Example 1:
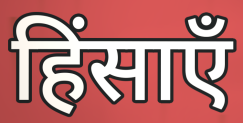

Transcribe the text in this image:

हिंसाएँ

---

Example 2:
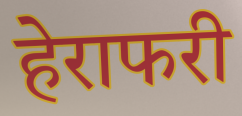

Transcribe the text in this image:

हेराफरी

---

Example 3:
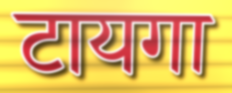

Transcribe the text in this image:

टायगा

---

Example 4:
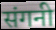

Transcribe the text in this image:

संगनी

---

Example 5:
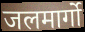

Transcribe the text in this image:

जलमार्गो